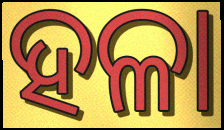
ହଳା